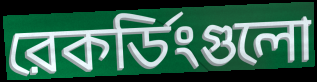
রেকর্ডিংগুলো